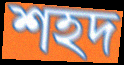
শহদ